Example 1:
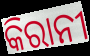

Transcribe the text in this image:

କିରାନୀ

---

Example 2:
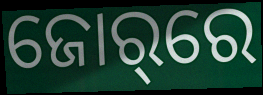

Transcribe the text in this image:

ଜୋର୍‌ରେ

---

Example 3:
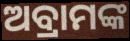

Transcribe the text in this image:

ଅବ୍ରାମଙ୍କ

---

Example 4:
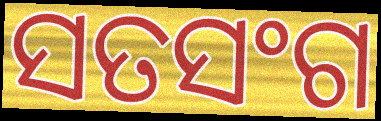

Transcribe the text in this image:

ସତସଂଗ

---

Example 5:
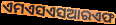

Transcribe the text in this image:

ଏମଏସଏସଆରଏଫ